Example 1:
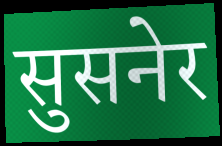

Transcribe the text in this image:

सुसनेर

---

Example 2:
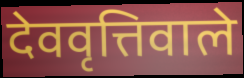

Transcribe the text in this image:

देववृत्तिवाले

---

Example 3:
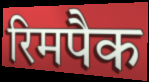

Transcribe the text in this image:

रिमपैक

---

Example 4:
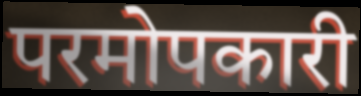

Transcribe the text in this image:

परमोपकारी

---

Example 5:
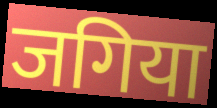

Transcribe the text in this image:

जगिया